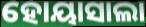
ହୋୟାସାଲା